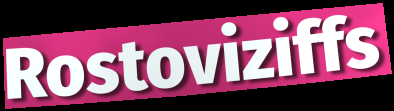
Rostoviziffs